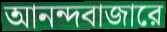
আনন্দবাজারে